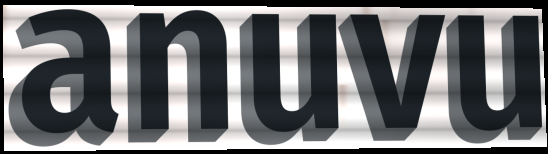
anuvu